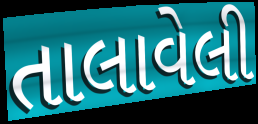
તાલાવેલી